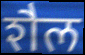
शैल